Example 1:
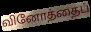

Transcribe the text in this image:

வினோத்தைப்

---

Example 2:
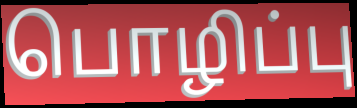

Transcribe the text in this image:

பொழிப்பு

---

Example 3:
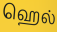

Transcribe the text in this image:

ஹெல்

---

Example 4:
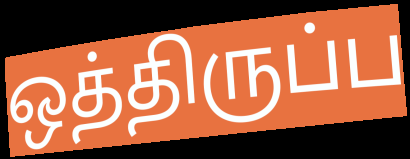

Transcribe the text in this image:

ஒத்திருப்ப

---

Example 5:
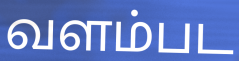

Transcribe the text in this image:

வளம்பட